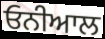
ਓਨੀਆਲ